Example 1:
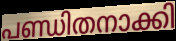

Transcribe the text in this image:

പണ്ഡിതനാക്കി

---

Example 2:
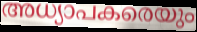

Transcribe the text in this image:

അധ്യാപകരെയും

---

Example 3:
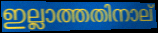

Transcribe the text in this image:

ഇല്ലാത്തതിനാല്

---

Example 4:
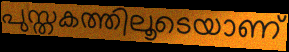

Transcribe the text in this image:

പുസ്തകത്തിലൂടെയാണ്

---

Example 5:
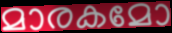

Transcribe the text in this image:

മാരകമോ